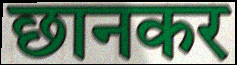
छानकर